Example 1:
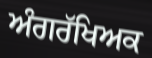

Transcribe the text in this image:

ਅੰਗਰੱਖਿਅਕ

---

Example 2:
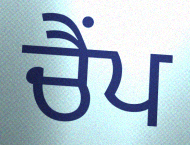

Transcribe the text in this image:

ਚੈਂਪ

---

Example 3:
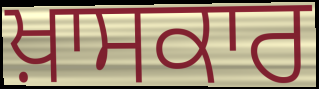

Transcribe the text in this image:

ਖ਼ਾਸਕਾਰ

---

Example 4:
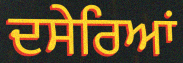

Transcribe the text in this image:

ਦਸੇਰਿਆਂ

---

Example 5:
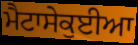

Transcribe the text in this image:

ਮੈਟਾਸੇਕੁਈਆ